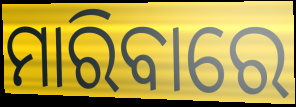
ମାରିବାରେ